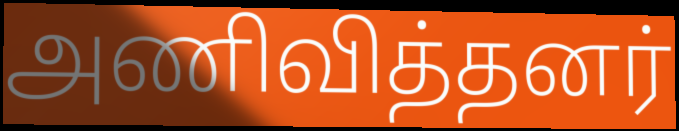
அணிவித்தனர்